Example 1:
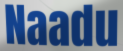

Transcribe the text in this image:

Naadu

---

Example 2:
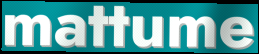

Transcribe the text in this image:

mattume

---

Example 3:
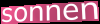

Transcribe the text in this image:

sonnen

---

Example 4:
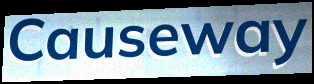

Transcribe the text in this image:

Causeway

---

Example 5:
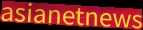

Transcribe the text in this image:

asianetnews